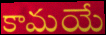
కామయే